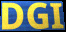
DGI